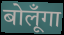
बोलूँगा